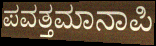
ಪವತ್ತಮಾನಾಪಿ